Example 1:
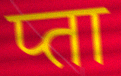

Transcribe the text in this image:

प्ता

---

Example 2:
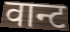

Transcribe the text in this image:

वान्ट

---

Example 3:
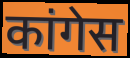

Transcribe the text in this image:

कांगेस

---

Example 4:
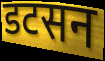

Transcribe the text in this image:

डटसन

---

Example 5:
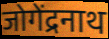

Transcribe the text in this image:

जोगेंद्रनाथ